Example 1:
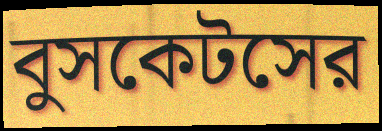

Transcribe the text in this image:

বুসকেটসের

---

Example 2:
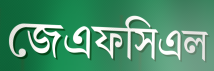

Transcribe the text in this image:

জেএফসিএল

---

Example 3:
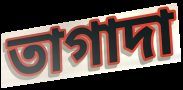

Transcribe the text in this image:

তাগাদা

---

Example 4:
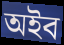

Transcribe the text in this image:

অইব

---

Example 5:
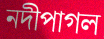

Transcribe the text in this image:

নদীপাগল